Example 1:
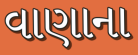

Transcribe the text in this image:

વાણાના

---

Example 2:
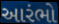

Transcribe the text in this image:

આરંભો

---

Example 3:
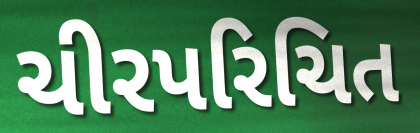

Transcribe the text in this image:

ચીરપરિચિત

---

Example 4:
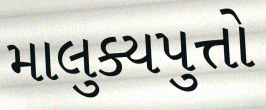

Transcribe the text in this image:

માલુક્યપુત્તો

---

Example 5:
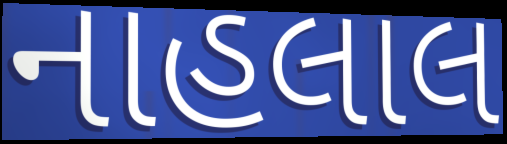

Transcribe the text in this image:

નાહલાલ